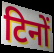
टिनों